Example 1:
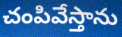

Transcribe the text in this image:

చంపివేస్తాను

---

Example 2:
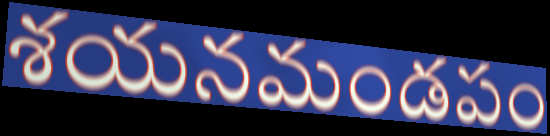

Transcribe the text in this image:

శయనమండపం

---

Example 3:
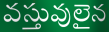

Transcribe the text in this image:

వస్తువులైన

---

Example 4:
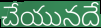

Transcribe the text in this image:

చేయునదే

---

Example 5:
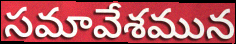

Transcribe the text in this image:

సమావేశమున